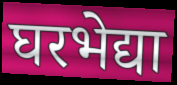
घरभेद्या